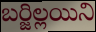
బర్జిల్లయిని